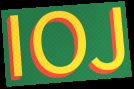
IOJ